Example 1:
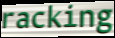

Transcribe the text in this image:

racking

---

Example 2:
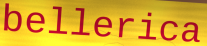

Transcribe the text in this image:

bellerica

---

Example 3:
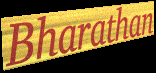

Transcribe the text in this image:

Bharathan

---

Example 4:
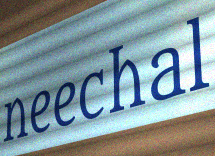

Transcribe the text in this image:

neechal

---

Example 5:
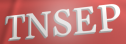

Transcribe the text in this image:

TNSEP